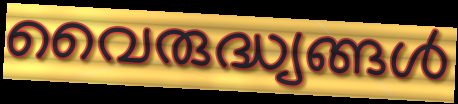
വൈരുദ്ധ്യങ്ങൾ